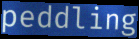
peddling